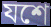
যশে